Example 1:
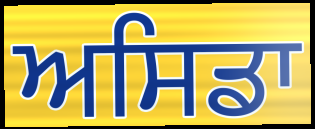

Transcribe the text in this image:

ਅਸਿਡਾ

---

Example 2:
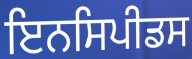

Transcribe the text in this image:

ਇਨਸਿਪੀਡਸ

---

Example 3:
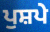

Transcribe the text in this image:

ਪੁਸ਼ਪੇ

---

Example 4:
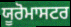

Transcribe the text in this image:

ਯੂਰੋਮਾਸਟਰ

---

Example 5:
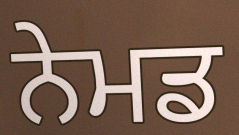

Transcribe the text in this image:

ਨੇਮਡ